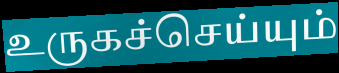
உருகச்செய்யும்